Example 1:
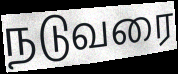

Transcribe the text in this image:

நடுவரை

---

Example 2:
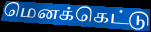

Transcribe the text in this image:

மெனக்கெட்டு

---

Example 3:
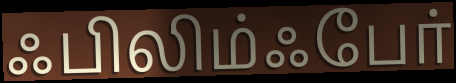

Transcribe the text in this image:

ஃபிலிம்ஃபேர்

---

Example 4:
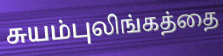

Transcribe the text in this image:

சுயம்புலிங்கத்தை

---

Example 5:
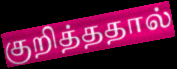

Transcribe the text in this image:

குறித்ததால்